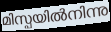
മിസ്പയിൽനിന്നു